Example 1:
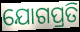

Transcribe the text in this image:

ଯୋଗପ୍ରତି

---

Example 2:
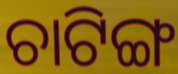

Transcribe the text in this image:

ଚାଟିଙ୍ଗ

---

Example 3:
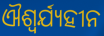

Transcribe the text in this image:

ଐଶ୍ୱର୍ଯ୍ୟହୀନ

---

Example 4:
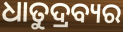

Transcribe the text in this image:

ଧାତୁଦ୍ରବ୍ୟର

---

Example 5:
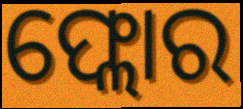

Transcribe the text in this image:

ଫ୍ଲୋର